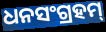
ଧନସଂଗ୍ରହମ୍